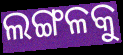
ଲଙ୍ଗଳକୁ